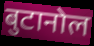
बुटानोल